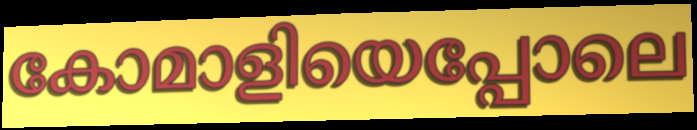
കോമാളിയെപ്പോലെ